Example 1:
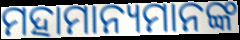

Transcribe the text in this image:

ମହାମାନ୍ୟମାନଙ୍କ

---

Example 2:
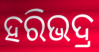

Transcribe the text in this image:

ହରିଭଦ୍ର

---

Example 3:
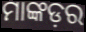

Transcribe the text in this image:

ମାଙ୍କଡ଼ର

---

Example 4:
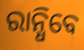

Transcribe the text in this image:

ରାନ୍ଧିବେ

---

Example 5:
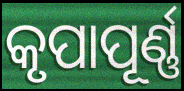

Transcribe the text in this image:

କୃପାପୂର୍ଣ୍ଣ